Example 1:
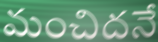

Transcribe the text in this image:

మంచిదనే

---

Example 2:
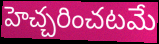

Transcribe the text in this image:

హెచ్చరించటమే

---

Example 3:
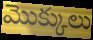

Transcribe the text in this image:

మొక్కులు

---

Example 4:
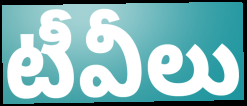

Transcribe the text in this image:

టీవీలు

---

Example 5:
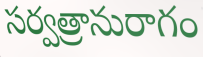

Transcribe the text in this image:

సర్వత్రానురాగం